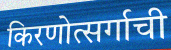
किरणोत्सर्गाची